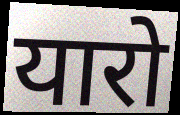
यारो